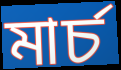
মার্চ